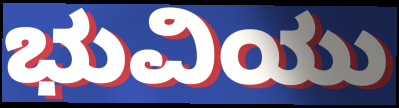
ಭುವಿಯು